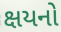
ક્ષયનો